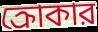
ক্রোকার